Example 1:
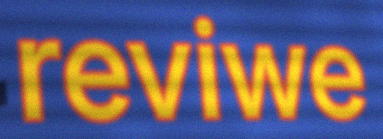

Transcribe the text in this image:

reviwe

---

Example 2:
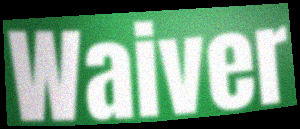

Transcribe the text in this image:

Waiver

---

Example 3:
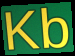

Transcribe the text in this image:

Kb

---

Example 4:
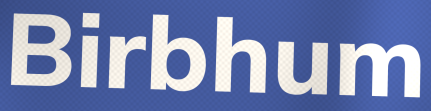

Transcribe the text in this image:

Birbhum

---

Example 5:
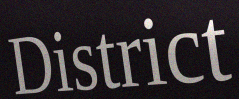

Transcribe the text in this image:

District